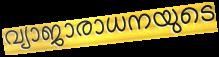
വ്യാജാരാധനയുടെ